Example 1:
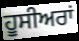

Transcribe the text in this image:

ਹੂਸੀਅਰਾਂ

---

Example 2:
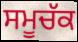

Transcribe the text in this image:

ਸਮੂਚੱਕ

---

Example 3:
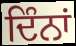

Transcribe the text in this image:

ਦਿੰਨਾਂ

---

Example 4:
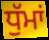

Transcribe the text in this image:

ਧੁੱਮਾਂ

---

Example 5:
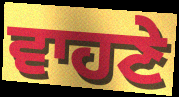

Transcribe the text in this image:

ਵਾਹਣੇ